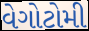
વેગોટોમી